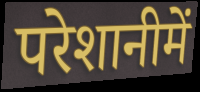
परेशानीमें